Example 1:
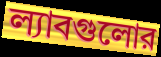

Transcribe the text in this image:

ল্যাবগুলোর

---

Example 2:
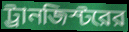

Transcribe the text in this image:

ট্রানজিস্টরের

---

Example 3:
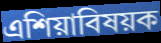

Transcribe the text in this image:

এশিয়াবিষয়ক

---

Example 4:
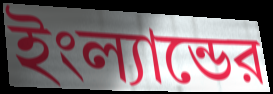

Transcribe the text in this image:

ইংল্যান্ডের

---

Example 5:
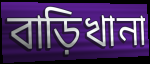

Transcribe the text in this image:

বাড়িখানা